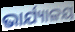
ଭାର୍ଯ୍ୟାଳୟ